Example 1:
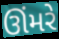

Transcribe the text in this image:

ઊંમરે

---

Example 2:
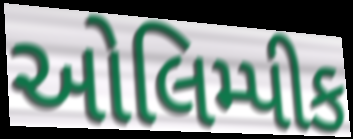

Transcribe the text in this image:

ઓલિમ્પીક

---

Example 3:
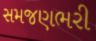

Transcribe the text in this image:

સમજણભરી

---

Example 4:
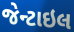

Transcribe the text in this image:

જેન્ટાઇલ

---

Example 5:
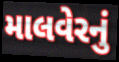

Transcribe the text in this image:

માલવેરનું